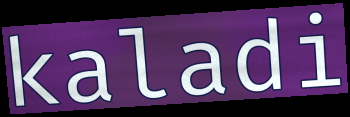
kaladi